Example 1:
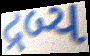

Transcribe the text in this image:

દ્રબ્ય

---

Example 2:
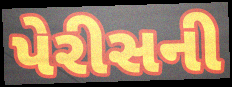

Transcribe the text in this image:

પેરીસની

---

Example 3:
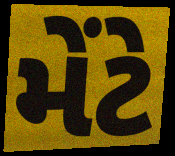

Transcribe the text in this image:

મેંટે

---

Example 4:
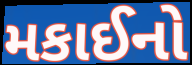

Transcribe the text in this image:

મકાઈનો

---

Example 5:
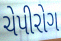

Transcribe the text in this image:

ચેપીરોગ